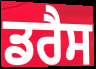
ਡਰੈਸ